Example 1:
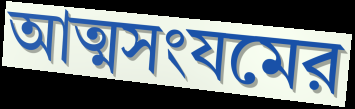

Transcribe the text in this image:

আত্মসংযমের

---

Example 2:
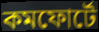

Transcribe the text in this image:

কমফোর্টে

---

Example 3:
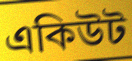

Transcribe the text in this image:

একিউট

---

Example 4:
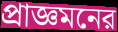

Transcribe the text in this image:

প্রাজ্ঞমনের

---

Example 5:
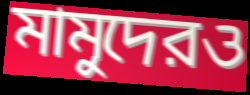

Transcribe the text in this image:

মামুদেরও